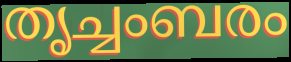
തൃച്ചംബരം